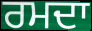
ਰਮਦਾ